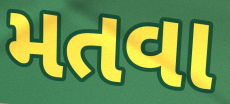
મતવા